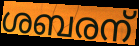
ശബരന്